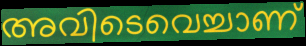
അവിടെവെച്ചാണ്